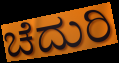
ಚೆದುರಿ